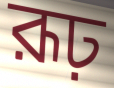
রূঢ়